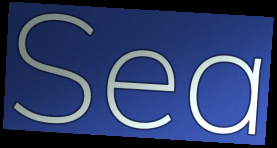
Sea